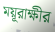
ময়ূরাক্ষীর